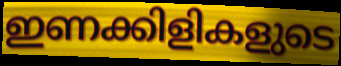
ഇണക്കിളികളുടെ